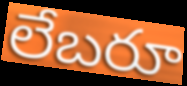
లేబరూ